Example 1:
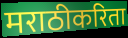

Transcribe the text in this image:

मराठीकरिता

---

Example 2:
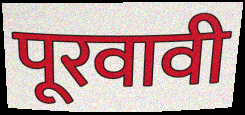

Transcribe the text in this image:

पूरवावी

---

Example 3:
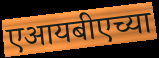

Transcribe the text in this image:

एआयबीएच्या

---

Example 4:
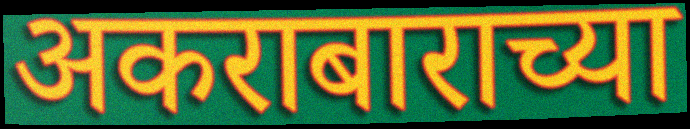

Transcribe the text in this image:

अकराबाराच्या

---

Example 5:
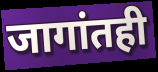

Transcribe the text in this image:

जागांतही